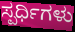
ಸ್ಪರ್ಧಿಗಳು